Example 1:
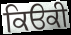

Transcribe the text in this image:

ਕਿੳਕੀ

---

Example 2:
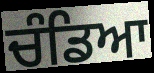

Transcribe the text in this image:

ਚੰਡਿਆ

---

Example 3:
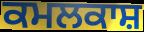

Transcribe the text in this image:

ਕਮਲਕਾਸ਼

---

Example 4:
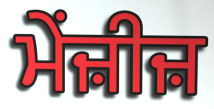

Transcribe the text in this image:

ਮੇਂਜ਼ੀਜ਼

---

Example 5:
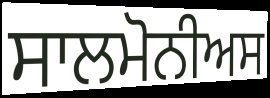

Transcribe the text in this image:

ਸਾਲਮੋਨੀਅਸ